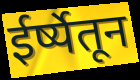
ईर्ष्येतून